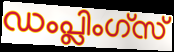
ഡംപ്ലിംഗ്സ്